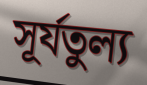
সূর্যতুল্য